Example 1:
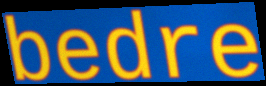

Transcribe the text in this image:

bedre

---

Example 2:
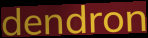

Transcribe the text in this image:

dendron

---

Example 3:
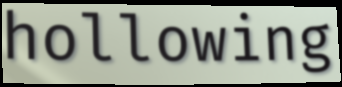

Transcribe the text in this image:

hollowing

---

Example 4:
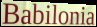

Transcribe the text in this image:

Babilonia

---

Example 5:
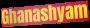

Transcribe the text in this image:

Ghanashyam